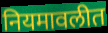
नियमावलीत